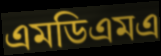
এমডিএমএ